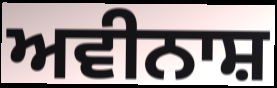
ਅਵੀਨਾਸ਼